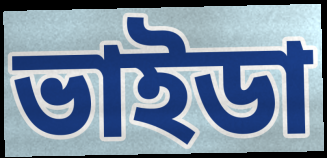
ভাইডা